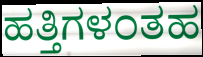
ಹತ್ತಿಗಳಂತಹ